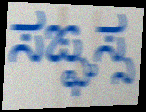
ಸಙ್ಘಸ್ಸ